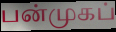
பன்முகப்